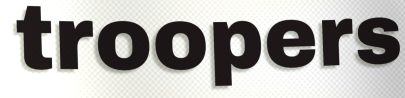
troopers